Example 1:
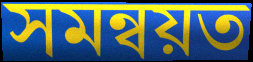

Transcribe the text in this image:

সমন্বয়ত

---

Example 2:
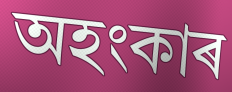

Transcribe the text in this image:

অহংকাৰ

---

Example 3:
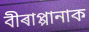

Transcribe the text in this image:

বীৰাপ্পানাক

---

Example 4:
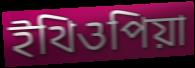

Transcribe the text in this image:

ইথিওপিয়া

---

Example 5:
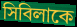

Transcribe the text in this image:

সিবিলাকে